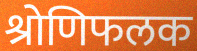
श्रोणिफलक